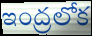
ఇంద్రలోక